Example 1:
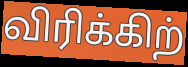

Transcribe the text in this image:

விரிக்கிற்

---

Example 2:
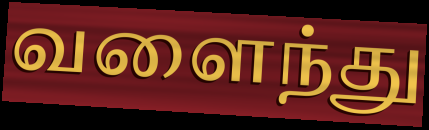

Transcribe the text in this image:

வளைந்து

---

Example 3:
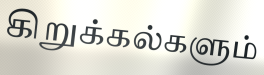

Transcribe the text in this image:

கிறுக்கல்களும்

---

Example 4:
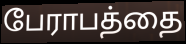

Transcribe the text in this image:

பேராபத்தை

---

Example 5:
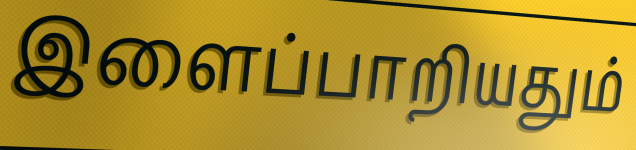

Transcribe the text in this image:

இளைப்பாறியதும்